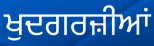
ਖੁਦਗਰਜ਼ੀਆਂ